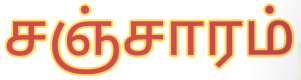
சஞ்சாரம்